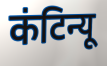
कंटिन्यू